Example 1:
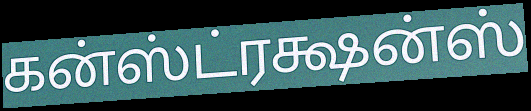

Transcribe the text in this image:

கன்ஸ்ட்ரக்ஷன்ஸ்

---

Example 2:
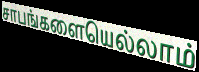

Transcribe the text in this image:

சாபங்களையெல்லாம்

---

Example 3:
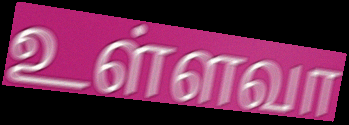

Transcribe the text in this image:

உள்ளவா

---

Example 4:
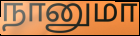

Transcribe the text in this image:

நானுமா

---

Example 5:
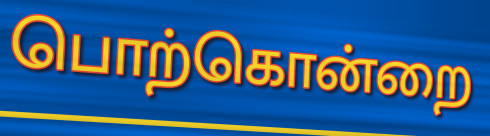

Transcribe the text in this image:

பொற்கொன்றை